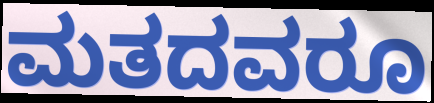
ಮತದವರೂ